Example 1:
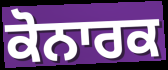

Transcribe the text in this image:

ਕੋਨਾਰਕ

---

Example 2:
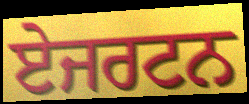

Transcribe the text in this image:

ਏਜਰਟਨ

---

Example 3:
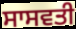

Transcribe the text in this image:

ਸਾਸਵਤੀ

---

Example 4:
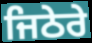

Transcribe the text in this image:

ਜਿਠੇਰੇ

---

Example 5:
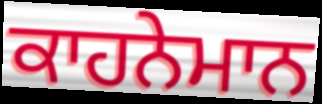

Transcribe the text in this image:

ਕਾਹਨੇਮਾਨ